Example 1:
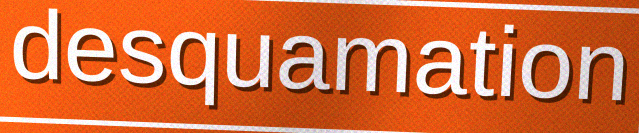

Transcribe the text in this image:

desquamation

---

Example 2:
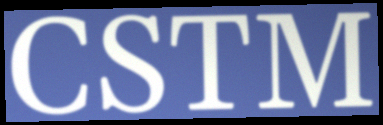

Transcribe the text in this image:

CSTM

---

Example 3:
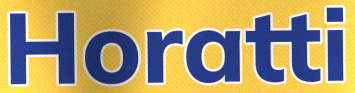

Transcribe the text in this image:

Horatti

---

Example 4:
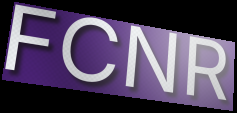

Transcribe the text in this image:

FCNR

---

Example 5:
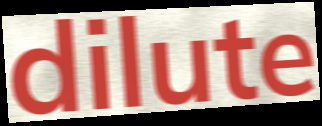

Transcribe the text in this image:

dilute